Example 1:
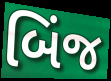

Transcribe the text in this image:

બિંજ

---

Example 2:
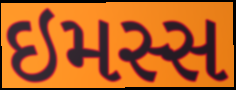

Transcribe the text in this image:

ઇમસ્સ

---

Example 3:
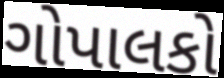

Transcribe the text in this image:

ગોપાલકો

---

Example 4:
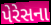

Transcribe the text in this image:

પેરેસના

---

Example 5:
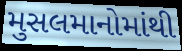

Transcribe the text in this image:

મુસલમાનોમાંથી